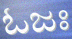
ಓಜಃ